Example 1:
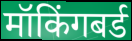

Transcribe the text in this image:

मॉकिंगबर्ड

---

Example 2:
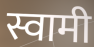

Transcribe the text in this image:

स्वामी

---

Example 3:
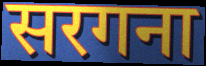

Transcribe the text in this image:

सरगना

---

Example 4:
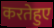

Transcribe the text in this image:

करतेहुए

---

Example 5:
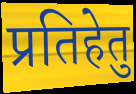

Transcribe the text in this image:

प्रतिहेतु